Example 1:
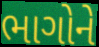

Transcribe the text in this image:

ભાગોને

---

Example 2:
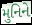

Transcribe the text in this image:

મુનિને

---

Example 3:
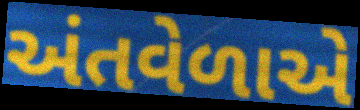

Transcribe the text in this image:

અંતવેળાએ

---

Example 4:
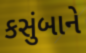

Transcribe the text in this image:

કસુંબાને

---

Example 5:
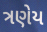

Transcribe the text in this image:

ત્રણેય